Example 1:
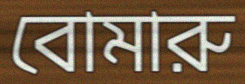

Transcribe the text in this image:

বোমারু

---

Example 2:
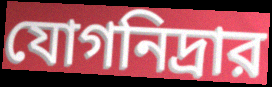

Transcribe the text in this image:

যোগনিদ্রার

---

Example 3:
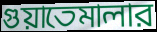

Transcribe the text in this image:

গুয়াতেমালার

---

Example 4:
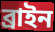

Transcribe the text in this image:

ব্রাইন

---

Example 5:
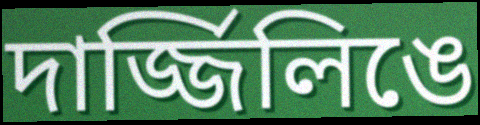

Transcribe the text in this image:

দার্জ্জিলিঙে